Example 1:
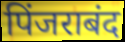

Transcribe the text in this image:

पिंजराबंद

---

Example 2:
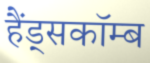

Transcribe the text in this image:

हैंड्सकॉम्ब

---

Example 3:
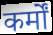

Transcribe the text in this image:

कर्मों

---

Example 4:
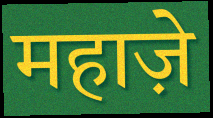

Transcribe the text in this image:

महाज़े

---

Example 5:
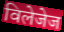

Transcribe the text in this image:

विलेजेज